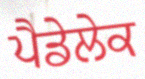
ਪੈਡੇਲੇਕ